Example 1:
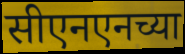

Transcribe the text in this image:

सीएनएनच्या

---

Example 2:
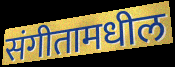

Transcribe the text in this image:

संगीतामधील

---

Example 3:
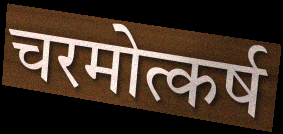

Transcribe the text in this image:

चरमोत्कर्ष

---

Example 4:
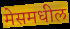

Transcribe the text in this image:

मेसमधील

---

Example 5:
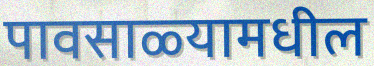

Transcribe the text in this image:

पावसाळ्यामधील